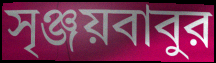
সৃঞ্জয়বাবুর